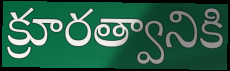
క్రూరత్వానికి